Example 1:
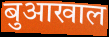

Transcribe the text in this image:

बुआखाल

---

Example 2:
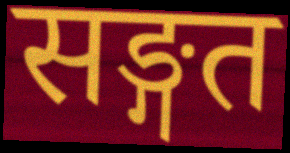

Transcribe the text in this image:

सङ्गत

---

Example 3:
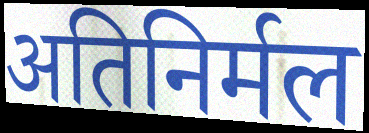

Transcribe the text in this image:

अतिनिर्मल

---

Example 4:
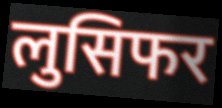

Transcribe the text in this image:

लुसिफर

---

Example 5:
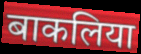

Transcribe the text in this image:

बाकलिया